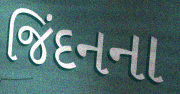
જિંદનના